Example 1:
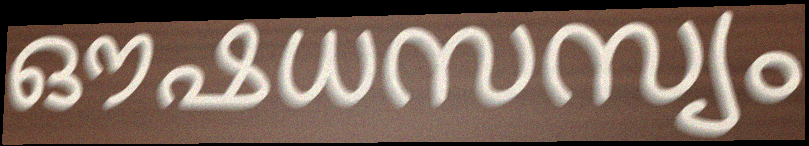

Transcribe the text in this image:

ഔഷധസസ്യം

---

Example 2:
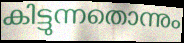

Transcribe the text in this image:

കിട്ടുന്നതൊന്നും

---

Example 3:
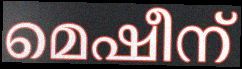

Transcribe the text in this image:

മെഷീന്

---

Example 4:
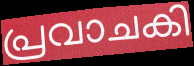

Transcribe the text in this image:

പ്രവാചകി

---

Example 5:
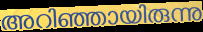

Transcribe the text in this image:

അറിഞ്ഞായിരുന്നു